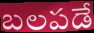
బలపడే